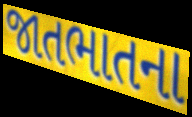
જાતભાતના